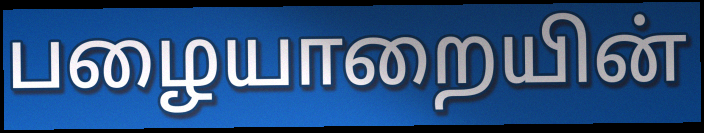
பழையாறையின்